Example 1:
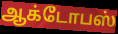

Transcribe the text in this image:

ஆக்டோபஸ்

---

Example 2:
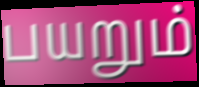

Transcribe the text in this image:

பயறும்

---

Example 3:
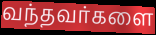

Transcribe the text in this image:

வந்தவர்களை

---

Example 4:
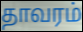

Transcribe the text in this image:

தாவரம்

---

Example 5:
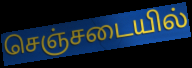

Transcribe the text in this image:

செஞ்சடையில்